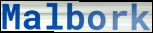
Malbork